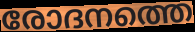
രോദനത്തെ